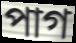
পাগ